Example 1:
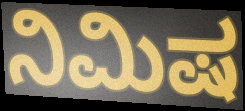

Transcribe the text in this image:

ನಿಮಿಷ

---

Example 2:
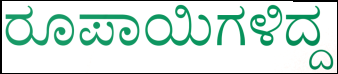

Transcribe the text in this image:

ರೂಪಾಯಿಗಳಿದ್ದ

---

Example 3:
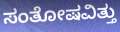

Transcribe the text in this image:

ಸಂತೋಷವಿತ್ತು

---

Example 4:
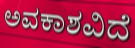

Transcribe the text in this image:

ಅವಕಾಶವಿದೆ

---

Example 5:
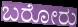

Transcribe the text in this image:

ಬರೋರು